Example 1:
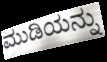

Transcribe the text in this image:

ಮುಡಿಯನ್ನು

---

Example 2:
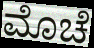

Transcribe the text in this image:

ಮೊಚೆ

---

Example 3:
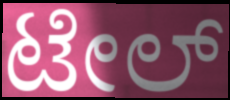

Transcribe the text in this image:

ಟೇಲ್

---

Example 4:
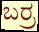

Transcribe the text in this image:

ಬರ್ರ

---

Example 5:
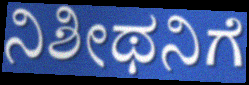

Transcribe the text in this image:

ನಿಶೀಥನಿಗೆ